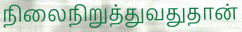
நிலைநிறுத்துவதுதான்